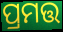
ପ୍ରମତ୍ତ